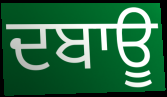
ਦਬਾਊ